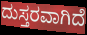
ದುಸ್ತರವಾಗಿದೆ